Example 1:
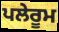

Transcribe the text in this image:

ਪਲੇਰੂਮ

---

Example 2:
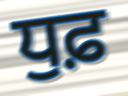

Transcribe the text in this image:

ਧੁਫ਼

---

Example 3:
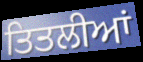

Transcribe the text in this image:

ਤਿਤਲੀਆਂ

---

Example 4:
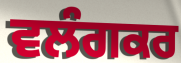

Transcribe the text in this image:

ਵਲੰਗਕਰ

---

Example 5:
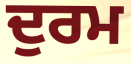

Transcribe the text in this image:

ਦੁਰਮ